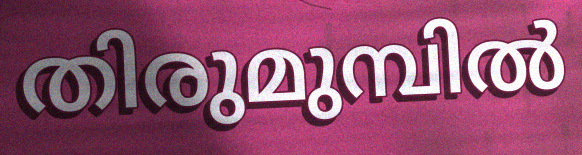
തിരുമുമ്പിൽ